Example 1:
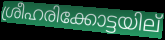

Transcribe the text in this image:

ശ്രീഹരിക്കോട്ടയില്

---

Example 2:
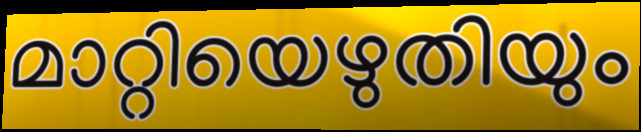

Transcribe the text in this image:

മാറ്റിയെഴുതിയും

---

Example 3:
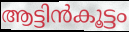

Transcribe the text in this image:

ആട്ടിൻകൂട്ടം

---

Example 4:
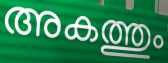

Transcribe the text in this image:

അകത്തും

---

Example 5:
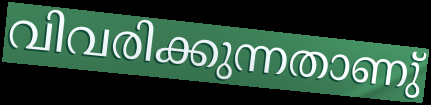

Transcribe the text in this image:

വിവരിക്കുന്നതാണു്